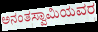
ಅನಂತಸ್ವಾಮಿಯವರ